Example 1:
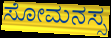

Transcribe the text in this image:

ಸೋಮನಸ್ಸ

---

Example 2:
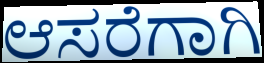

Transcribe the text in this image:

ಆಸರೆಗಾಗಿ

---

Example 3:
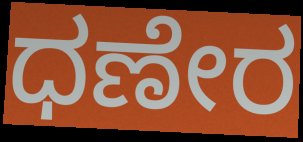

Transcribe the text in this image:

ಧಣೇರ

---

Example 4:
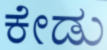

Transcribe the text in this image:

ಕೇಡು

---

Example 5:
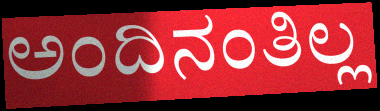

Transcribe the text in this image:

ಅಂದಿನಂತಿಲ್ಲ